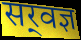
सर्वज्ञ